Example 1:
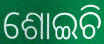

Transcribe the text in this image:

ଶୋଇଚି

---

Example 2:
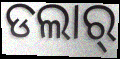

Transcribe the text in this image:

ଡଲାର୍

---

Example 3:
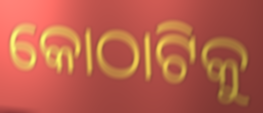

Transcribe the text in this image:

କୋଠାଟିକୁ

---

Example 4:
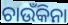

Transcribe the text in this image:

ଚାଉଁକିନା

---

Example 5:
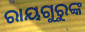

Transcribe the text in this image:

ରାୟଗୁରୁଙ୍କ